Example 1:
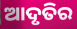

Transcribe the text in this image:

ଆଦୃତିର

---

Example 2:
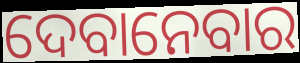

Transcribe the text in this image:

ଦେବାନେବାର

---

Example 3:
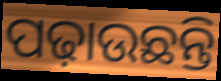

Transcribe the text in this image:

ପଢ଼ାଉଛନ୍ତି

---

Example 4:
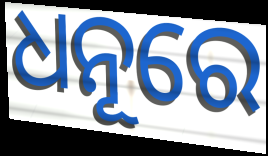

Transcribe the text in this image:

ଧନୂରେ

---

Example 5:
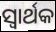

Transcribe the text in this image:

ସ୍ବାର୍ଥକ